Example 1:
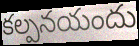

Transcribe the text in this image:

కల్పనయందు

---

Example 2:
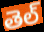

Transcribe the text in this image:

తెల్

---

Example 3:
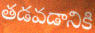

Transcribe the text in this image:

తడవడానికి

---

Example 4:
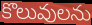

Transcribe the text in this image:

కొలువులను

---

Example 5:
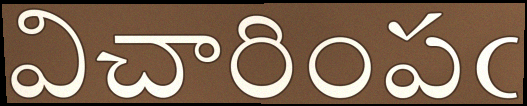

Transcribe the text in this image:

విచారింపఁ